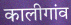
कालीगांव